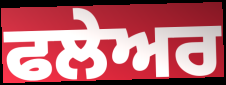
ਫਲੇਅਰ